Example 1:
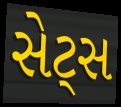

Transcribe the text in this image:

સેટ્સ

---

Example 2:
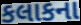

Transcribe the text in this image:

કલાકના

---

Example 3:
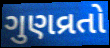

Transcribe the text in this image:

ગુણવ્રતો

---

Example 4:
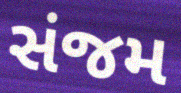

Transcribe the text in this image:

સંજમ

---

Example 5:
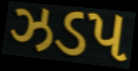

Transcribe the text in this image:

ઝડપ